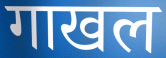
गाखल